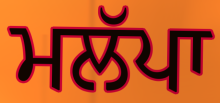
ਮਲੱਪਾ